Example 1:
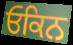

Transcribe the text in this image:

ਓਕਿਨ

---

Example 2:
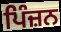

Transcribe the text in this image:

ਪਿੰਜ਼ਨ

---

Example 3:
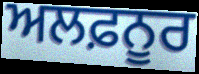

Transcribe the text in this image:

ਅਲਫ਼ਨੂਰ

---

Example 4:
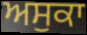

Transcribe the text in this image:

ਅਸੁਕਾ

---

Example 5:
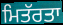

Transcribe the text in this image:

ਮਿਤੱਰਤਾ